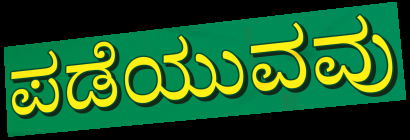
ಪಡೆಯುವವು